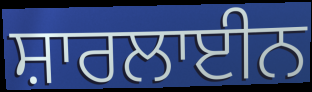
ਸ਼ਾਰਲਾਈਨ